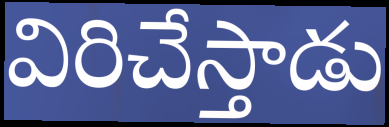
విరిచేస్తాడు